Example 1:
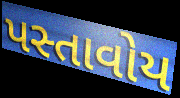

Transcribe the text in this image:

પસ્તાવોય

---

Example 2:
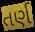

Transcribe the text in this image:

તર્ણ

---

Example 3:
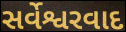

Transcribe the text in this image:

સર્વેશ્વરવાદ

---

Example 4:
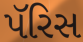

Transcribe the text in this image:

પૅરિસ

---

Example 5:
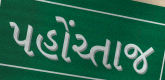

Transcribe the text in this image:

પહોંચ્તાજ